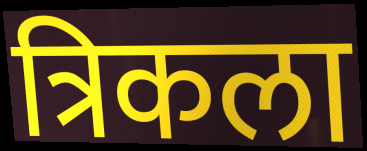
त्रिकला